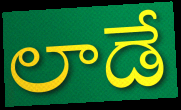
లాడే